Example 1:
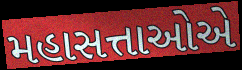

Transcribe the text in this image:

મહાસત્તાઓએ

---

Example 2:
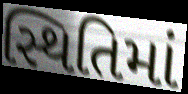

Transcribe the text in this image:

સ્થિતિમાં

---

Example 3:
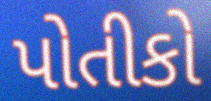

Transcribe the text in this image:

પોતીકો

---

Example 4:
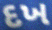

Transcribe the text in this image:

દખ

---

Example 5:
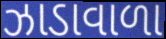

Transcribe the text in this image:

ઝાડાવાળા